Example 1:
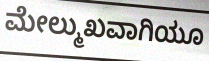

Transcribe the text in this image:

ಮೇಲ್ಮುಖವಾಗಿಯೂ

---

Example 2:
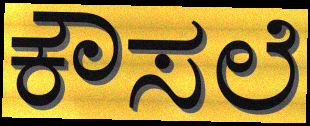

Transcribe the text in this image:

ಕೌಸಲೆ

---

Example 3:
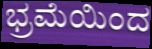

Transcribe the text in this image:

ಭ್ರಮೆಯಿಂದ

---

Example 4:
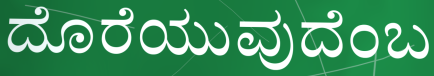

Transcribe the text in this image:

ದೊರೆಯುವುದೆಂಬ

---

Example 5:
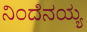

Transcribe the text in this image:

ನಿಂದೆನಯ್ಯ